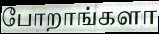
போறாங்களா